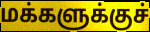
மக்களுக்குச்